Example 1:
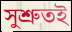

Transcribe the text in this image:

সুশ্ৰুতই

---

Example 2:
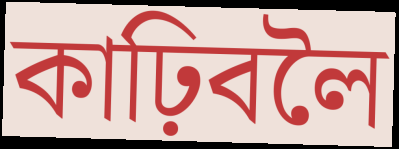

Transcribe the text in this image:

কাঢ়িবলৈ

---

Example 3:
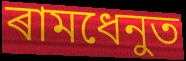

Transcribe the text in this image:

ৰামধেনুত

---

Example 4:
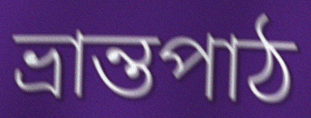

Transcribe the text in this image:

ভ্ৰান্তপাঠ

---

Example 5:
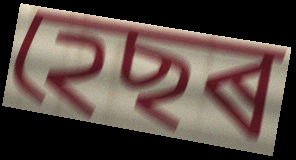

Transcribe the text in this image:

হেছৰ